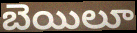
బెయిలూ